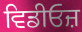
ਵਿਡੀਓਜ਼